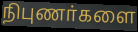
நிபுணர்களை